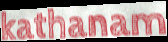
kathanam